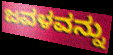
ಜವಳವನ್ನು